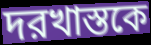
দরখাস্তকে